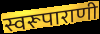
स्वरूपाराणी